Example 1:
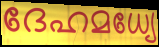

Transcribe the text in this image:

ദേഹമധ്യേ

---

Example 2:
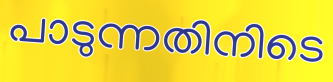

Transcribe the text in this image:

പാടുന്നതിനിടെ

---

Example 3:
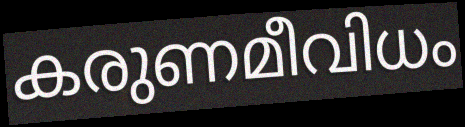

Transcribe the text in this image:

കരുണമീവിധം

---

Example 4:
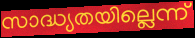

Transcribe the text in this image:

സാദ്ധ്യതയില്ലെന്ന്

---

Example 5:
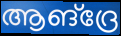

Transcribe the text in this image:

ആങ്ദ്രേ